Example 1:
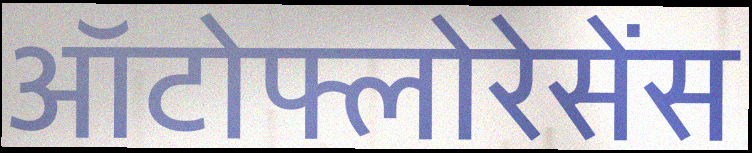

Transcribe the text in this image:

ऑटोफ्लोरेसेंस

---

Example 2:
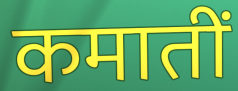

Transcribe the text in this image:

कमातीं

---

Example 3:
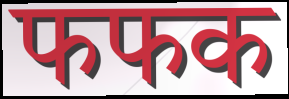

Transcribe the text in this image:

फफक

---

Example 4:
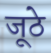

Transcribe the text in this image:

जूठे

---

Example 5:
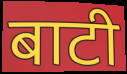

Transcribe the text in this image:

बाटी